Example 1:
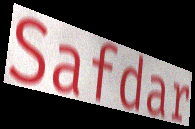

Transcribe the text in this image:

Safdar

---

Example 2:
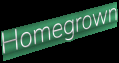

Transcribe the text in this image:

Homegrown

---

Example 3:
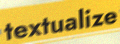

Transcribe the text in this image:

textualize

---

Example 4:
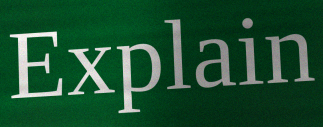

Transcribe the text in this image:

Explain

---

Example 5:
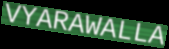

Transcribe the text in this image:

VYARAWALLA